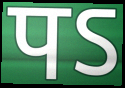
पऽ